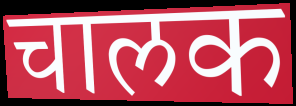
चालक